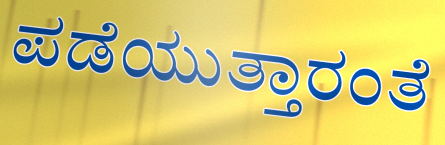
ಪಡೆಯುತ್ತಾರಂತೆ